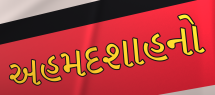
અહમદશાહનો